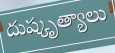
దుష్కృత్యాలు